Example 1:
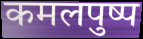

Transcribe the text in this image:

कमलपुष्प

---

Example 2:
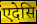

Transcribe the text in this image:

एदेसि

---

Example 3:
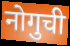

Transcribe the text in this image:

नोगुची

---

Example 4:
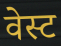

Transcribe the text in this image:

वेस्ट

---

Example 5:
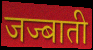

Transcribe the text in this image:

जज्बाती